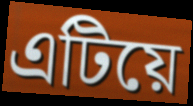
এটিয়ে